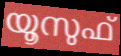
യൂസുഫ്